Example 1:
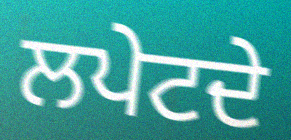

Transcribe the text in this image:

ਲਪੇਟਦੇ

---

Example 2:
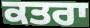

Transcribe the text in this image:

ਕਤਰਾ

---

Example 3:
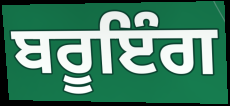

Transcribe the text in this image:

ਬਰੂਇੰਗ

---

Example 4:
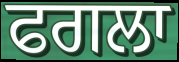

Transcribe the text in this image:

ਫਗਲਾ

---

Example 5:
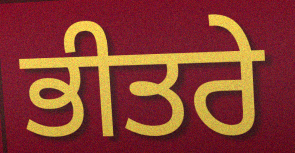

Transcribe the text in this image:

ਭੀਤਰੇ